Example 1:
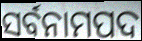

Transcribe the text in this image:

ସର୍ବନାମପଦ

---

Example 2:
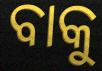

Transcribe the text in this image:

ବାକୁ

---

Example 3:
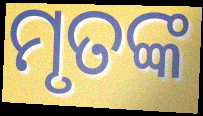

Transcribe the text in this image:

ମୃତଙ୍କ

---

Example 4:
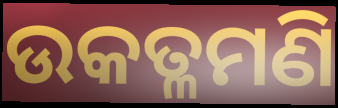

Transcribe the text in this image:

ଉକତ୍ଳମଣି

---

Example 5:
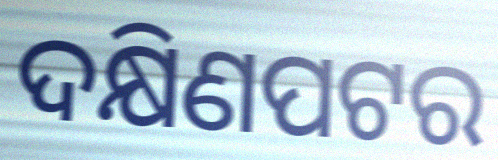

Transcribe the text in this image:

ଦକ୍ଷିଣପଟର